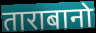
ताराबानो